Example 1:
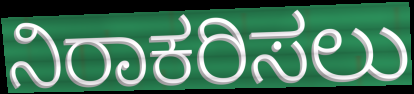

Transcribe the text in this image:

ನಿರಾಕರಿಸಲು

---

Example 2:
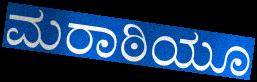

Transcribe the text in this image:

ಮರಾಠಿಯೂ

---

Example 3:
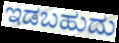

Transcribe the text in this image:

ಇಡಬಹುದು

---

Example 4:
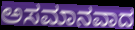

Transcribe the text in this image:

ಅಸಮಾನವಾದ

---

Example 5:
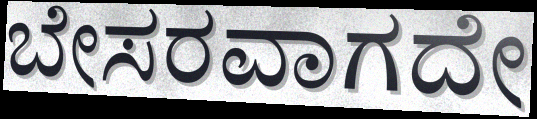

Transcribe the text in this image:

ಬೇಸರವಾಗದೇ